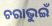
ଚରାଭୁଇଁ